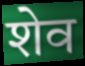
शेव